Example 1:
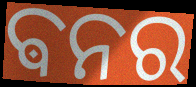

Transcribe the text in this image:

ଵନର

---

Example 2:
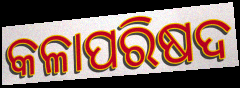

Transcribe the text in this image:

କଳାପରିଷଦ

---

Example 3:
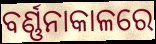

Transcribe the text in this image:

ବର୍ଣ୍ଣନାକାଳରେ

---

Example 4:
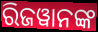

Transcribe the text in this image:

ରିଜୱାନଙ୍କ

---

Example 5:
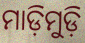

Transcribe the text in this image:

ମାଡ଼ିମୁଡ଼ି